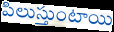
పిలుస్తుంటాయి